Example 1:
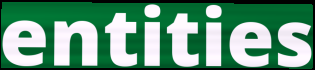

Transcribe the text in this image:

entities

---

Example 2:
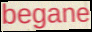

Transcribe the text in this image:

begane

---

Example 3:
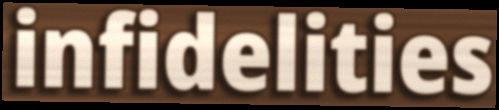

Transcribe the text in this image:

infidelities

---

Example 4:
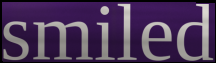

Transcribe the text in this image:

smiled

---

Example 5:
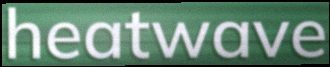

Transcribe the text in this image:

heatwave